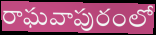
రాఘవాపురంలో